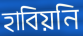
হাবিয়নি